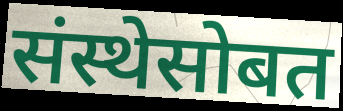
संस्थेसोबत